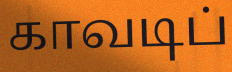
காவடிப்